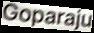
Goparaju